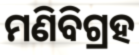
ମଣିବିଗ୍ରହ